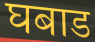
घबाड